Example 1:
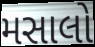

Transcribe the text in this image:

મસાલો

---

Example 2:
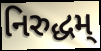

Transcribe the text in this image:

નિરુદ્ધમ્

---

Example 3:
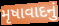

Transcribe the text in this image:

મૃષાવાદનું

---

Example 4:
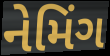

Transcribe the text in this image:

નેમિંગ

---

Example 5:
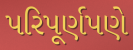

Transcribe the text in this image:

પરિપૂર્ણપણે